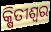
କ୍ଷିତୀଶ୍ୱର